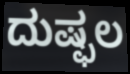
ದುಷ್ಫಲ